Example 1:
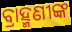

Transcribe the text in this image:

ବ୍ରାହ୍ମଣୀଙ୍କ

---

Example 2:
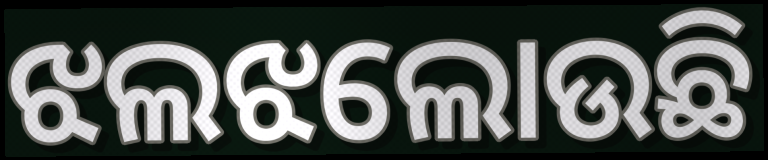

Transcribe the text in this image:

ଝଲଝଲୋଉଛି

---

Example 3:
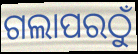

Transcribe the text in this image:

ଗଲାପରଠୁଁ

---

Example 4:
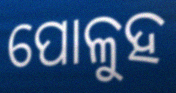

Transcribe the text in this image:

ପୋଳୁହ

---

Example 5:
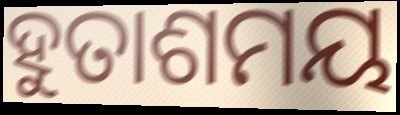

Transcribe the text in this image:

ହୁତାଶମୟ